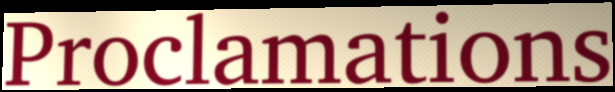
Proclamations